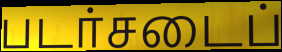
படர்சடைப்